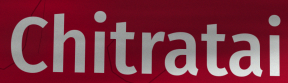
Chitratai